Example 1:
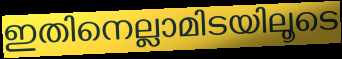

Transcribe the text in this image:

ഇതിനെല്ലാമിടയിലൂടെ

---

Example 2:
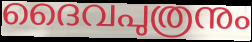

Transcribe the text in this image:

ദൈവപുത്രനും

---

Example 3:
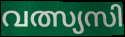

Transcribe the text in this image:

വത്സ്യസി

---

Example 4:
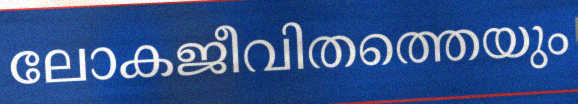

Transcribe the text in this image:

ലോകജീവിതത്തെയും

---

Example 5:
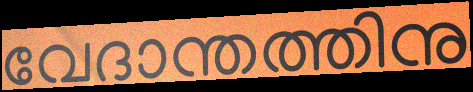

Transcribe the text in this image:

വേദാന്തത്തിനു